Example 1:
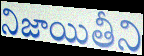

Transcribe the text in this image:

నిజాయితీని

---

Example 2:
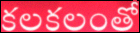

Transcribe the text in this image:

కలకలంతో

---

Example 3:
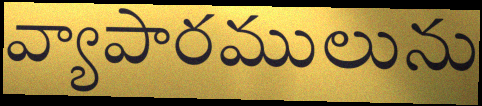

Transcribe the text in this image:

వ్యాపారములును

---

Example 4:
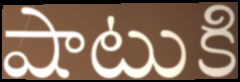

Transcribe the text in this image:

షాటుకి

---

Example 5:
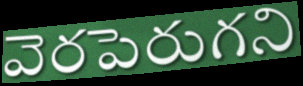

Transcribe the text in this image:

వెరపెరుగని